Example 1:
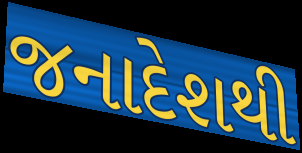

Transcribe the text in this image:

જનાદેશથી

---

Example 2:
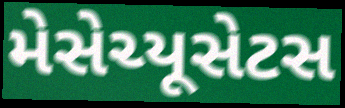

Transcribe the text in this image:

મેસેચ્યૂસેટસ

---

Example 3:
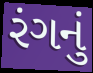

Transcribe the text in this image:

રંગનું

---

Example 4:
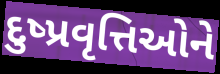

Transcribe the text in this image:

દુષ્પ્રવૃત્તિઓને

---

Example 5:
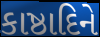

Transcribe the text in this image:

કાષ્ઠાદિને